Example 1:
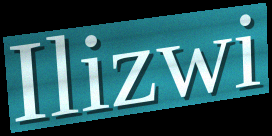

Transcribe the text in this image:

Ilizwi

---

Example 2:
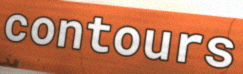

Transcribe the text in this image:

contours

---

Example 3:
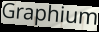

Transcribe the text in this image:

Graphium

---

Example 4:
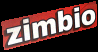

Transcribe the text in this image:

zimbio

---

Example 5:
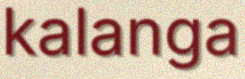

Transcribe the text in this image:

kalanga